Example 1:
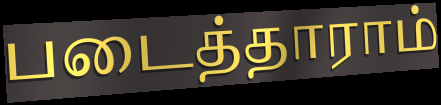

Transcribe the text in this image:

படைத்தாராம்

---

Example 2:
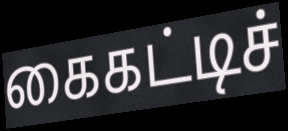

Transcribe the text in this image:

கைகட்டிச்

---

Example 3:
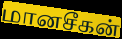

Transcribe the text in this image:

மானசீகன்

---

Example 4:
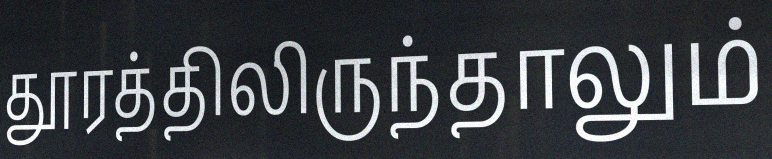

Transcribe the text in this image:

தூரத்திலிருந்தாலும்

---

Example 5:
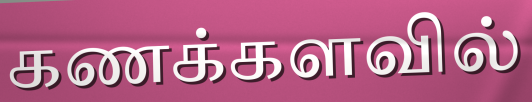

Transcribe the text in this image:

கணக்களவில்